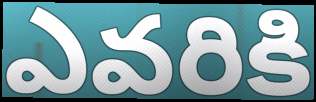
ఎవరికి